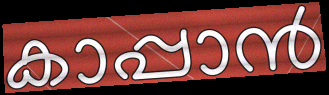
കാപ്പാൻ